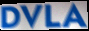
DVLA